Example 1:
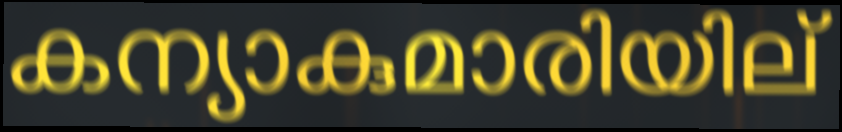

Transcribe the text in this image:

കന്യാകുമാരിയില്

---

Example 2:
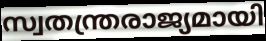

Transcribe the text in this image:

സ്വതന്ത്രരാജ്യമായി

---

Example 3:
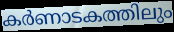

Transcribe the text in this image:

കർണാടകത്തിലും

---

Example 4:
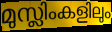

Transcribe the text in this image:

മുസ്ലിംകളിലും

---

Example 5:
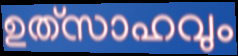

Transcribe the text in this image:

ഉത്‌സാഹവും